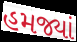
હમજ્યાં